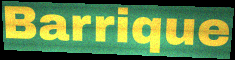
Barrique